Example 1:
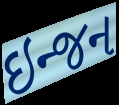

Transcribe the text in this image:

ઇન્જન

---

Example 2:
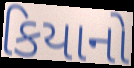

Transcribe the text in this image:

કિયાનો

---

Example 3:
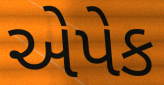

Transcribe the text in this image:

એપેક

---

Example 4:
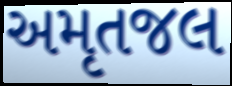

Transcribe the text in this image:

અમૃતજલ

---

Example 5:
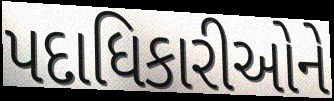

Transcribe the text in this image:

પદાધિકારીઓને